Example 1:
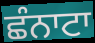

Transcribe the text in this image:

ਛੰਨਾਟਾ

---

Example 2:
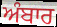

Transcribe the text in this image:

ਅੰਬਾਰ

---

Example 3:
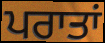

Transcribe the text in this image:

ਪਰਾਤਾਂ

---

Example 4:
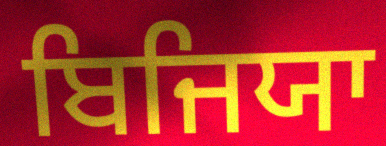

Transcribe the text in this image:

ਬਿਜਿਯਾ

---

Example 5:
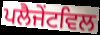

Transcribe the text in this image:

ਪਲੈਜੇਂਟਵਿਲ